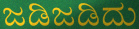
ಜಡಿಜಡಿದು